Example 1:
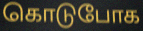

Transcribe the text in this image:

கொடுபோக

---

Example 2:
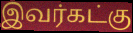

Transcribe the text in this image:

இவர்கட்கு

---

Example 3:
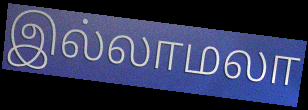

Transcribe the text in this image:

இல்லாமலா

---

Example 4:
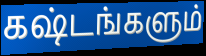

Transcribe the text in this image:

கஷ்டங்களும்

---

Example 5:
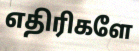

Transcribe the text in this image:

எதிரிகளே